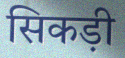
सिकड़ी